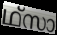
ഥ്സാ